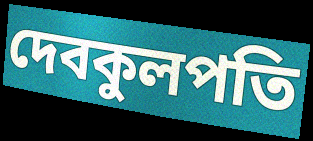
দেবকুলপতি